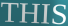
THIS